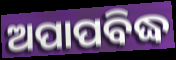
ଅପାପବିଦ୍ଧ